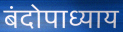
बंदोपाध्‍याय